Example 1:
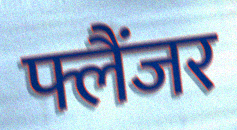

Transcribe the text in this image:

फ्लैंजर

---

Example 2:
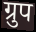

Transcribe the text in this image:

ग्रुप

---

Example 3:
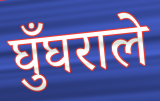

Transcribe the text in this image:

घुँघराले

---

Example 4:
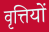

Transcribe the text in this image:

वृत्तियों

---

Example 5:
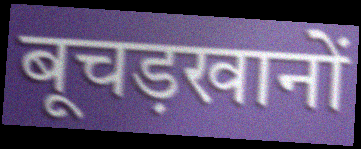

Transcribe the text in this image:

बूचड़खानों